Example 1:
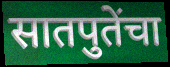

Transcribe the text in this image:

सातपुतेंचा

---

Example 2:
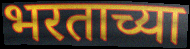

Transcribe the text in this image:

भरताच्या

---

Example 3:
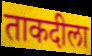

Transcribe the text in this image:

ताकदीला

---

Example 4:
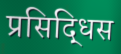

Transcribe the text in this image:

प्रसिद्धिस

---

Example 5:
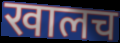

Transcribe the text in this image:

खालच